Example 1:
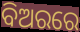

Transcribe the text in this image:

ବିଅରରେ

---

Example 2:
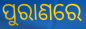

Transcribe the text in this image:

ପୁରାଣରେ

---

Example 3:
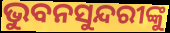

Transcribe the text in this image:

ଭୁବନସୁନ୍ଦରୀଙ୍କୁ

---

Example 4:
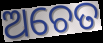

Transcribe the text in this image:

ଅଚେତ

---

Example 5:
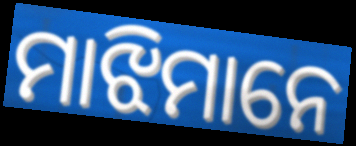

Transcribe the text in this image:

ମାଝିମାନେ